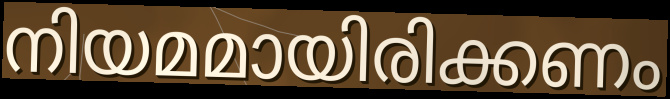
നിയമമായിരിക്കണം